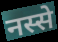
नस्से